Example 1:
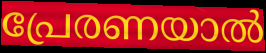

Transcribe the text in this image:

പ്രേരണയാൽ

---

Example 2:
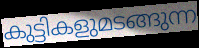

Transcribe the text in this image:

കുട്ടികളുമടങ്ങുന്ന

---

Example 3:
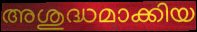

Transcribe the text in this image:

അശുദ്ധമാക്കിയ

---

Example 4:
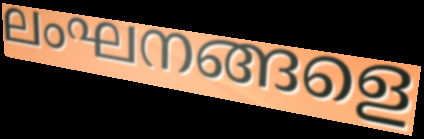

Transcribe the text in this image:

ലംഘനങ്ങളെ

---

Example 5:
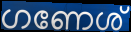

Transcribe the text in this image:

ഗണേശ്